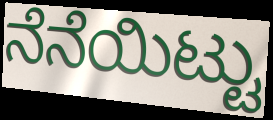
ನೆನೆಯಿಟ್ಟು